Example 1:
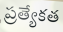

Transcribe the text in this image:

ప్రత్యేకత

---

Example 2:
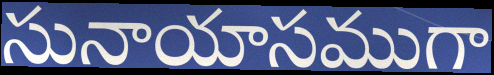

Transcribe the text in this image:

సునాయాసముగా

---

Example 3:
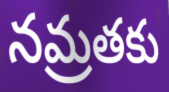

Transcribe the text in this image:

నమ్రతకు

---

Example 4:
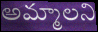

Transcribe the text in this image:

అమ్మాలని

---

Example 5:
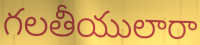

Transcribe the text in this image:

గలతీయులారా